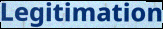
Legitimation